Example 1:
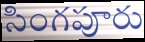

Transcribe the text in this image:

సింగపూరు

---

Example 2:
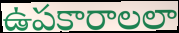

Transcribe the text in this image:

ఉపకారాలలా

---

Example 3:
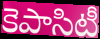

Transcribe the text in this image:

కెపాసిటీ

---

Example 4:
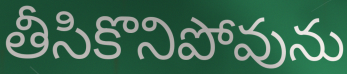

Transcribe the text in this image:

తీసికొనిపోవును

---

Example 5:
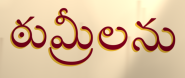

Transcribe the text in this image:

ఠుమ్రీలను